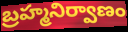
బ్రహ్మనిర్వాణం